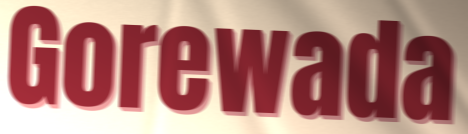
Gorewada